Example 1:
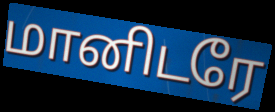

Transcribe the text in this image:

மானிடரே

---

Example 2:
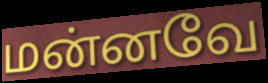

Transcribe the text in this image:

மன்னவே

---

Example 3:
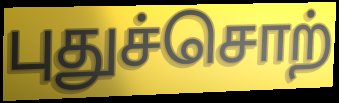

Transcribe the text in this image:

புதுச்சொற்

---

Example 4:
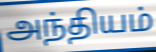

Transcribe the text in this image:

அந்தியம்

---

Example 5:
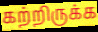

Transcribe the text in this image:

கற்றிருக்க